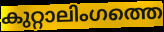
കുറ്റാലിംഗത്തെ